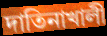
দাতিনাখালী